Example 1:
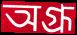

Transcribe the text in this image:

অগ্রূ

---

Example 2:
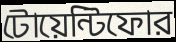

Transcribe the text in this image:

টোয়েন্টিফোর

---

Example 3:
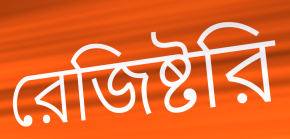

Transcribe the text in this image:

রেজিষ্টরি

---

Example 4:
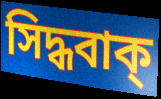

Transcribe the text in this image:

সিদ্ধবাক্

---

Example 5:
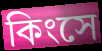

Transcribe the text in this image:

কিংসে